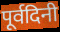
पूर्वदिनी